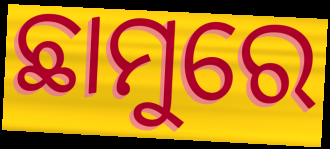
ଛାମୁରେ